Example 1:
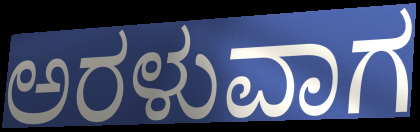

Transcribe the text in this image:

ಅರಳುವಾಗ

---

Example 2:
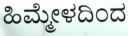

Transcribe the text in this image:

ಹಿಮ್ಮೇಳದಿಂದ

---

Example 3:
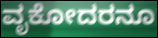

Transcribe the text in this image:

ವೃಕೋದರನೂ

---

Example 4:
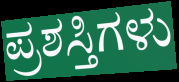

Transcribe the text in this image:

ಪ್ರಶಸ್ತಿಗಳು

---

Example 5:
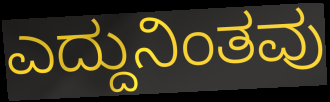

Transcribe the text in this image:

ಎದ್ದುನಿಂತವು